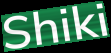
Shiki